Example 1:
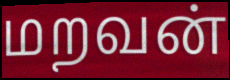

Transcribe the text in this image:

மறவன்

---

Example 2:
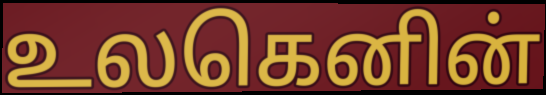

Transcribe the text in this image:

உலகெனின்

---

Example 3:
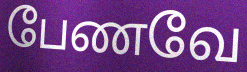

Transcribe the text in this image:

பேணவே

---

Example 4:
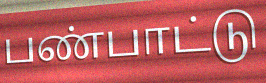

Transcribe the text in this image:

பண்பாட்டு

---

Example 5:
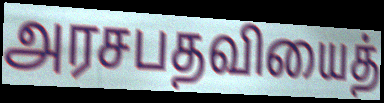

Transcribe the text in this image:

அரசபதவியைத்